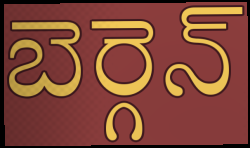
బెర్గెన్